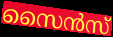
സൈൻസ്